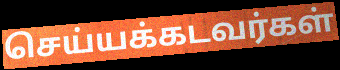
செய்யக்கடவர்கள்